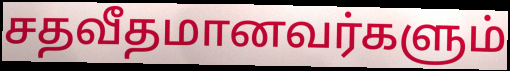
சதவீதமானவர்களும்